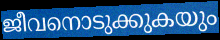
ജീവനൊടുക്കുകയും